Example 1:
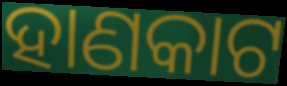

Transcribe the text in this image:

ହାଣକାଟ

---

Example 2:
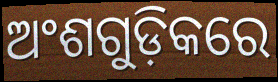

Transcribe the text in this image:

ଅଂଶଗୁଡ଼ିକରେ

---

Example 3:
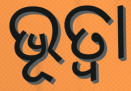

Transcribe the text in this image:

ଭୂତ୍ୱା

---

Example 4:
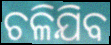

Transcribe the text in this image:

ଚଳିଯିବ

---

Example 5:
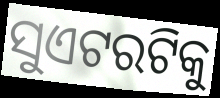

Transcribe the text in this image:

ସୁଏଟରଟିକୁ